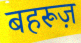
बहरूज़